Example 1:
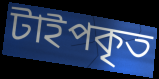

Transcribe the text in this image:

টাইপকৃত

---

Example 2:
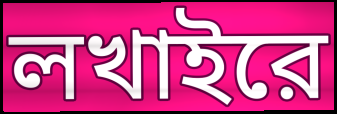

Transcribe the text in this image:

লখাইরে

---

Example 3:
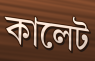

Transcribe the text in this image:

কালেট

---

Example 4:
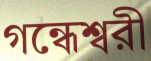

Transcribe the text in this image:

গন্ধেশ্বরী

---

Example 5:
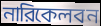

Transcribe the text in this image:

নারিকেলবন